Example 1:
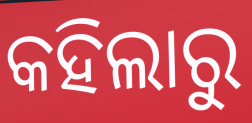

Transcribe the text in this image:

କହିଲାରୁ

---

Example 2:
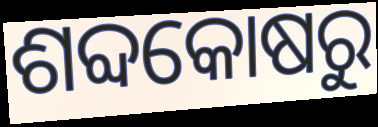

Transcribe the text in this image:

ଶବ୍ଦକୋଷରୁ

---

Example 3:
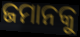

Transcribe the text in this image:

ଜମାନକୁ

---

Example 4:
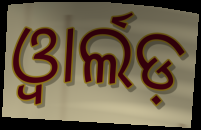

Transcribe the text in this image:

ଓ୍ୱାର୍ଲଡ଼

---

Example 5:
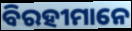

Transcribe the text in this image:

ବିରହୀମାନେ